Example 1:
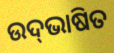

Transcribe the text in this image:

ଉଦ୍‍ଭାଷିତ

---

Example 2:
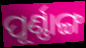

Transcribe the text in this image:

ପୂର୍ଣ୍ଣାଙ୍ଗ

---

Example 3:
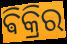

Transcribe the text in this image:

ଵିକ୍ରିର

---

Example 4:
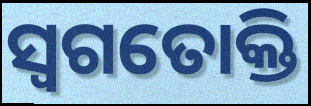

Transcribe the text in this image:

ସ୍ୱଗତୋକ୍ତି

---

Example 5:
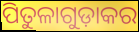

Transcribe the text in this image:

ପିତୁଳାଗୁଡ଼ାକର